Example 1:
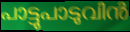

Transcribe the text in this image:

പാട്ടുപാടുവിൻ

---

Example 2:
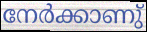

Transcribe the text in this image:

നേർക്കാണു്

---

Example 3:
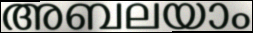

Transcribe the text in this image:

അബലയാം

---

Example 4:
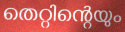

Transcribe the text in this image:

തെറ്റിന്റെയും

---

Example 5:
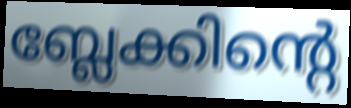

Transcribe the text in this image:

ബ്ലേക്കിന്റെ